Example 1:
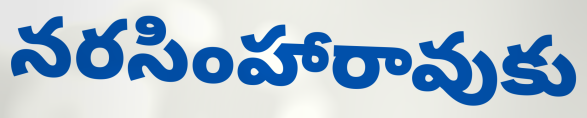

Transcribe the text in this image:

నరసింహారావుకు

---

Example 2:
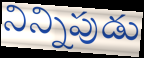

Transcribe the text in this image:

నిన్నిపుడు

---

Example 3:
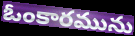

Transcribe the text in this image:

ఓంకారమును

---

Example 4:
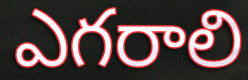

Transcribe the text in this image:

ఎగరాలి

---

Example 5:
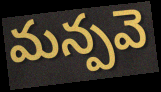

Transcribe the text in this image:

మన్పవె